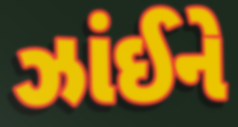
ઝાંઈને